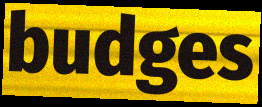
budges